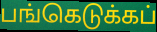
பங்கெடுக்கப்